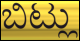
ಬಿಟ್ಲು